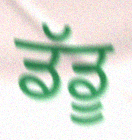
ਡੱਡੂ